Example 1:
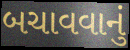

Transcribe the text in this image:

બચાવવાનું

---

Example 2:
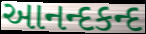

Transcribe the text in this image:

આનન્દકન્દ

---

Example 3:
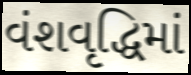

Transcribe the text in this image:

વંશવૃદ્ધિમાં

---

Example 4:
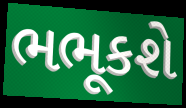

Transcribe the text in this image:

ભભૂકશે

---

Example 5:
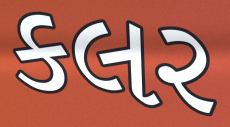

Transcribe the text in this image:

કલર